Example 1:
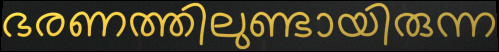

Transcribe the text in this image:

ഭരണത്തിലുണ്ടായിരുന്ന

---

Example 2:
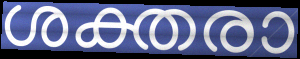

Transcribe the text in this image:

ശക്തരാ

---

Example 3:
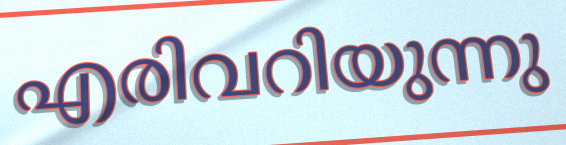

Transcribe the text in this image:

എരിവറിയുന്നു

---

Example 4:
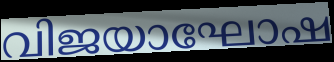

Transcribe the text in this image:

വിജയാഘോഷ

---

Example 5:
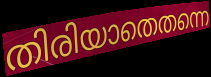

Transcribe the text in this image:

തിരിയാതെതന്നെ